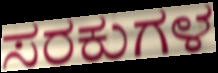
ಸರಕುಗಳ